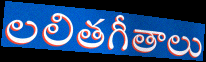
లలితగీతాలు